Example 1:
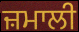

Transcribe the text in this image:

ਜ਼ਮਾਲੀ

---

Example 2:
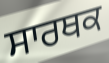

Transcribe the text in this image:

ਸਾਰਥਕ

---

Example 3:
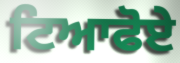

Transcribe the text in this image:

ਟਿਆਫੋਏ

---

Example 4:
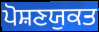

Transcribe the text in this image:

ਪੋਸ਼ਣਯੁਕਤ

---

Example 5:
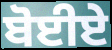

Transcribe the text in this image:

ਬੋਈਏ